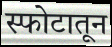
स्फोटातून